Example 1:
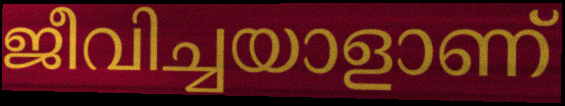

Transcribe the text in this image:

ജീവിച്ചയാളാണ്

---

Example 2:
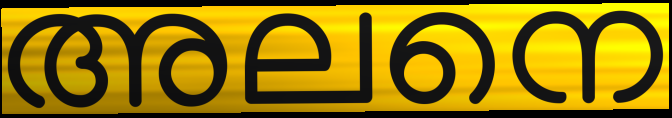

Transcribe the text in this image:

അലനെ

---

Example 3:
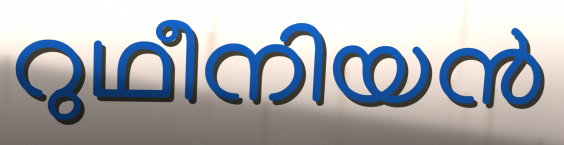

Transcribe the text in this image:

റുഥീനിയൻ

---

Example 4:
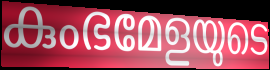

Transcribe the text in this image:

കുംഭമേളയുടെ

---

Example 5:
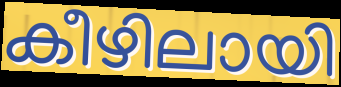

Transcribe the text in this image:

കീഴിലായി